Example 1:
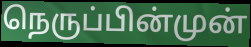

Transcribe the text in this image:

நெருப்பின்முன்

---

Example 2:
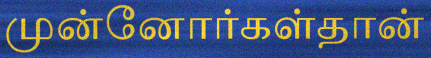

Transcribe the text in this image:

முன்னோர்கள்தான்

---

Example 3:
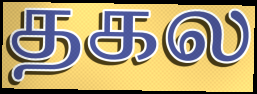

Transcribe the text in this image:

தகல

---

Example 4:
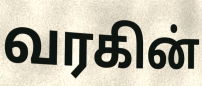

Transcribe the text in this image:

வரகின்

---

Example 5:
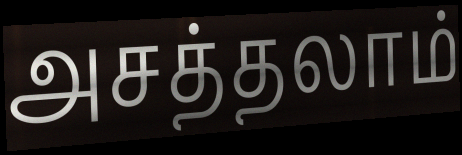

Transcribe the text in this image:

அசத்தலாம்